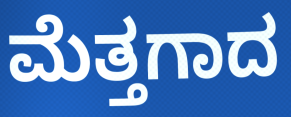
ಮೆತ್ತಗಾದ